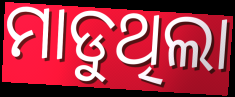
ମାଡୁଥିଲା